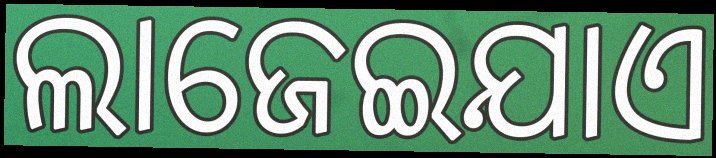
ଲାଜେଇଯାଏ